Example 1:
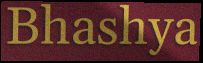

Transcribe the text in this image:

Bhashya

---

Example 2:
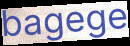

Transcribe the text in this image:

bagege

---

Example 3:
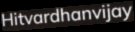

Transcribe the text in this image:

Hitvardhanvijay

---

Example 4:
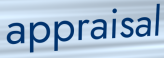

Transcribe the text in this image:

appraisal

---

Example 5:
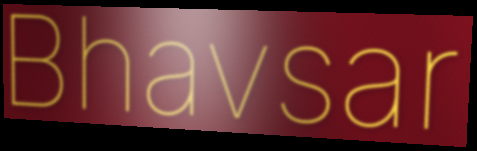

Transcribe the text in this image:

Bhavsar